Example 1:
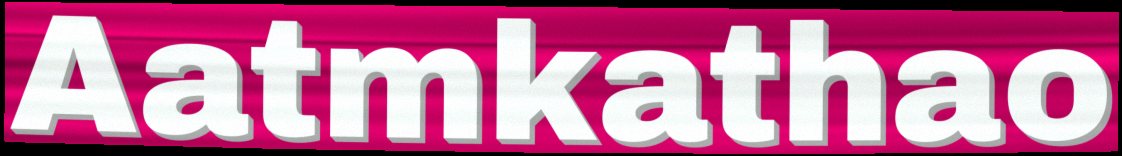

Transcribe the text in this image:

Aatmkathao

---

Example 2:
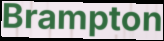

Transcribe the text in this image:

Brampton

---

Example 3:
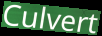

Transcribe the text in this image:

Culvert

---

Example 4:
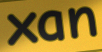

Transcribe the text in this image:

xan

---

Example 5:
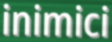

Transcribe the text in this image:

inimici